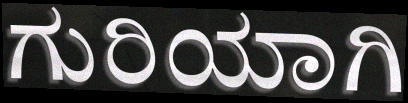
ಗುರಿಯಾಗಿ